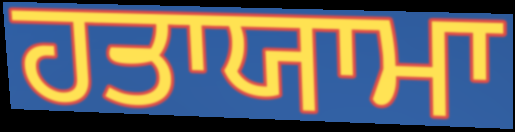
ਹਤਾਯਾਮਾ